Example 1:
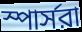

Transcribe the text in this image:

স্পার্সরা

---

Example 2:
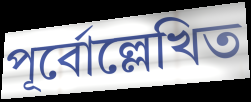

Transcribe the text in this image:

পূর্বোল্লেখিত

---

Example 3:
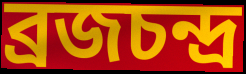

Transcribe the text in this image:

ব্রজচন্দ্র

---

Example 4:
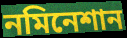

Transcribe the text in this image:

নমিনেশান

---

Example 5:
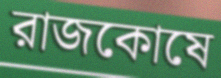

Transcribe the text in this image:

রাজকোষে